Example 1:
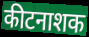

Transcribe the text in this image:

कीटनाशक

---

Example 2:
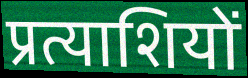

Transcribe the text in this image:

प्रत्याशियों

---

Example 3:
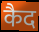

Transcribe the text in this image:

कैद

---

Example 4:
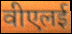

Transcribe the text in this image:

वीएलई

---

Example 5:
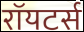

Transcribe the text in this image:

रॉयटर्स